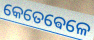
କେତେଵେଳେ